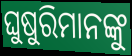
ଘୁଷୁରିମାନଙ୍କୁ